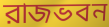
রাজভবন